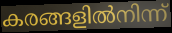
കരങ്ങളിൽനിന്ന്